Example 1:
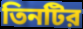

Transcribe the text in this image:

তিনটির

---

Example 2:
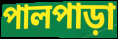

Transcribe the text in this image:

পালপাড়া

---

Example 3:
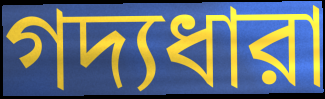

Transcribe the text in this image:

গদ্যধারা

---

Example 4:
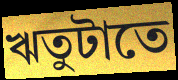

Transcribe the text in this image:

ঋতুটাতে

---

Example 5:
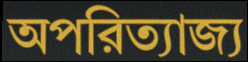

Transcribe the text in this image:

অপরিত্যাজ্য